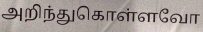
அறிந்துகொள்ளவோ